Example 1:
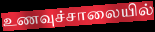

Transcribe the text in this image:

உணவுச்சாலையில்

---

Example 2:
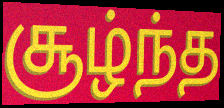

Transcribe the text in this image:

சூழ்ந்த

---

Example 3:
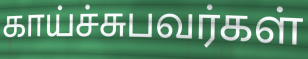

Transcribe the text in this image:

காய்ச்சுபவர்கள்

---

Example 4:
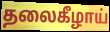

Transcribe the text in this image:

தலைகீழாய்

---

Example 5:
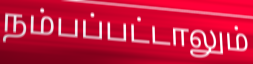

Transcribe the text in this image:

நம்பப்பட்டாலும்